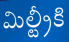
మిల్ట్రీకి